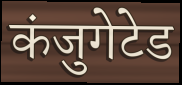
कंजुगेटेड